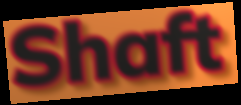
Shaft